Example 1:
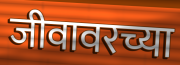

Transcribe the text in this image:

जीवावरच्या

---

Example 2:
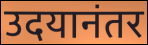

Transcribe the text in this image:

उदयानंतर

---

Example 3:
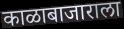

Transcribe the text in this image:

काळाबाजाराला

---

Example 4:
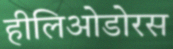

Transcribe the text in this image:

हीलिओडोरस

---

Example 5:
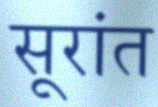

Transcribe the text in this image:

सूरांत